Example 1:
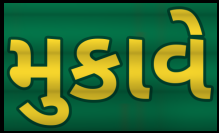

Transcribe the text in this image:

મુકાવે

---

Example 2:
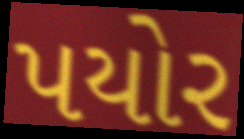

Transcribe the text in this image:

પયોર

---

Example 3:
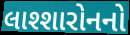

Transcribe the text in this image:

લાશ્શારોનનો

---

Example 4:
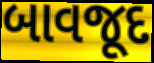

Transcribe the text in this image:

બાવજૂદ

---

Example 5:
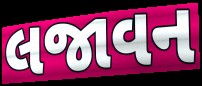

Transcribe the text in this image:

લજાવન